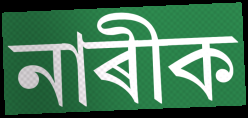
নাৰীক